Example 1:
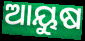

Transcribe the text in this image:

ଆୟୁଷ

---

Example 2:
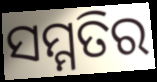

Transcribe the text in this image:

ସମ୍ମତିର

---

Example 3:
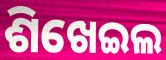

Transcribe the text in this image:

ଶିଖେଇଲ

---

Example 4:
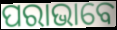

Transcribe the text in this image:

ପରାଭାବେ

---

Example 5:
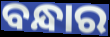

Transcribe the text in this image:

ବନ୍ଧାର